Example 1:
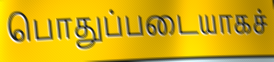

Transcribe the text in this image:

பொதுப்படையாகச்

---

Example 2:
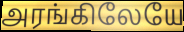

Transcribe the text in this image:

அரங்கிலேயே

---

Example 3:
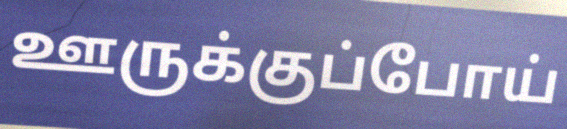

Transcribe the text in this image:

ஊருக்குப்போய்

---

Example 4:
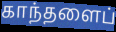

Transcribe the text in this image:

காந்தளைப்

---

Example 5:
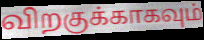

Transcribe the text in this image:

விறகுக்காகவும்